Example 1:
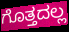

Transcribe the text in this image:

ಗೊತ್ತದಲ್ಲ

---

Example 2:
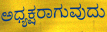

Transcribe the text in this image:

ಅಧ್ಯಕ್ಷರಾಗುವುದು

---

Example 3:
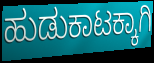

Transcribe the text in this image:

ಹುಡುಕಾಟಕ್ಕಾಗಿ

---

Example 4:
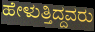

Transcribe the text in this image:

ಹೇಳುತ್ತಿದ್ದವರು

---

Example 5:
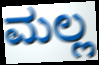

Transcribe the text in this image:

ಮಲ್ಲ